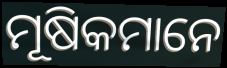
ମୂଷିକମାନେ